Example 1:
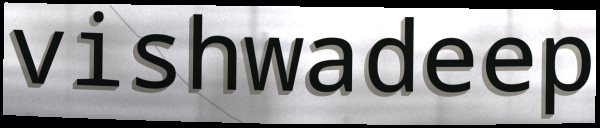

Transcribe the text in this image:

vishwadeep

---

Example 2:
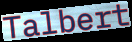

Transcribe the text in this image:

Talbert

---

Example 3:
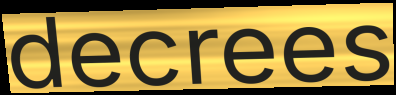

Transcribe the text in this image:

decrees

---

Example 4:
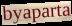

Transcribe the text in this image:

byaparta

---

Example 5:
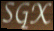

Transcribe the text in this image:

SGX